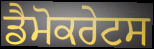
ਡੈਮੋਕਰੇਟਸ